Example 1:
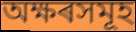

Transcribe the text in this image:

অক্ষৰসমূহ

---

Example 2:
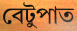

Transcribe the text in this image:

বেটুপাত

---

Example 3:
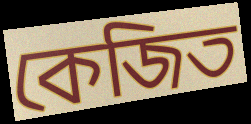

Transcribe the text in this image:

কেজিত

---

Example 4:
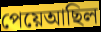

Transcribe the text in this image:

পেয়েআছিল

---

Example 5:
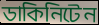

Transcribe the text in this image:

ডাকিনিটেন